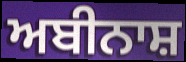
ਅਬੀਨਾਸ਼